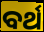
ବର୍ଥ